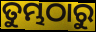
ତୁମ୍ଭଠାରୁ